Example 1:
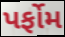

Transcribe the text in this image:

પર્ફોમ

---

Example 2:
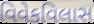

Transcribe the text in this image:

વિવેકવિલાસ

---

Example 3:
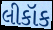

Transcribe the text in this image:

લીકૉક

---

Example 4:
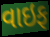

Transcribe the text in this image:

વાઇફ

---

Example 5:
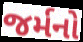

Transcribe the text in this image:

જર્મનો